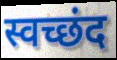
स्वच्छंद